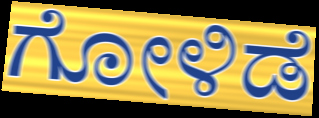
ಗೋಳಿಡೆ